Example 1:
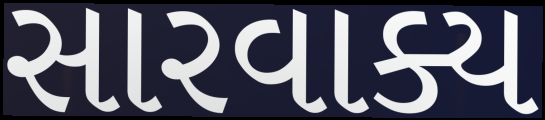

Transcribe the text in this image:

સારવાક્ય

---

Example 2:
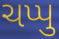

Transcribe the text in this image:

ચપ્પુ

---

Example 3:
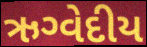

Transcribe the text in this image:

ઋગ્વેદીય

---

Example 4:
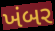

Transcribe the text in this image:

ખંબર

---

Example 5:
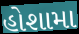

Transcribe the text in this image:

હોશામા